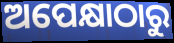
ଅପେକ୍ଷାଠାରୁ